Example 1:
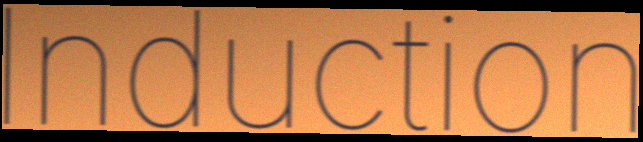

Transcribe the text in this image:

Induction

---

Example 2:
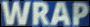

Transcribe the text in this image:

WRAP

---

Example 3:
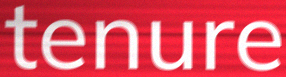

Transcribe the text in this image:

tenure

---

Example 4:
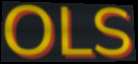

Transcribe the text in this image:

OLS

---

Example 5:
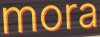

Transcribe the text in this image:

mora